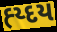
હ્ય્દય